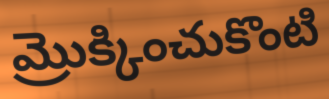
మ్రొక్కించుకొంటి